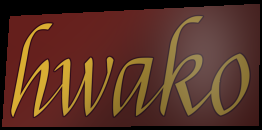
hwako